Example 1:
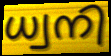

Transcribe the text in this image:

ധ്വനി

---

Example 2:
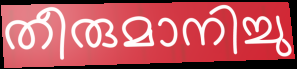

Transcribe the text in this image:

തീരുമാനിച്ചു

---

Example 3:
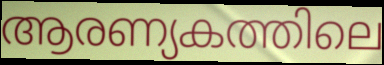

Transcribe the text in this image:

ആരണ്യകത്തിലെ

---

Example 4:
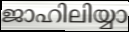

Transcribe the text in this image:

ജാഹിലിയ്യാ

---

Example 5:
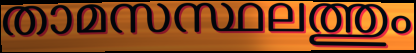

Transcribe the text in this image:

താമസസ്ഥലത്തും